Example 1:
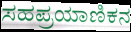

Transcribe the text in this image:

ಸಹಪ್ರಯಾಣಿಕನ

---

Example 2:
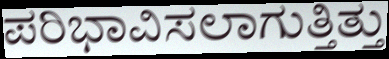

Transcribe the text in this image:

ಪರಿಭಾವಿಸಲಾಗುತ್ತಿತ್ತು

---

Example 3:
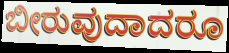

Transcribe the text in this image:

ಬೀರುವುದಾದರೂ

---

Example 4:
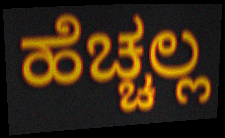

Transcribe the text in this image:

ಹೆಚ್ಚಲ್ಲ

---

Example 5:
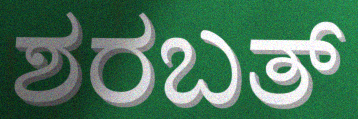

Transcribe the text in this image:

ಶರಬತ್